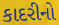
કાદરીનો